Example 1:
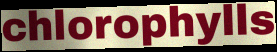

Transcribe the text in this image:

chlorophylls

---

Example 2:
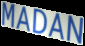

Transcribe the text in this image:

MADAN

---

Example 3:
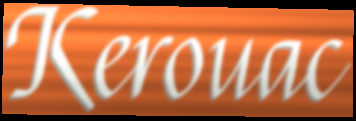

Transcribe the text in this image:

Kerouac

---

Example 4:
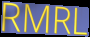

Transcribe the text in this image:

RMRL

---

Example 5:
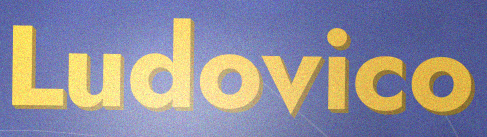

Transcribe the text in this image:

Ludovico